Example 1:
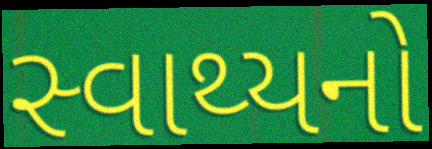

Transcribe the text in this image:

સ્વાથ્યનો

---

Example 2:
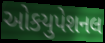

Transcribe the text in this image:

ઓકયુપેશનલ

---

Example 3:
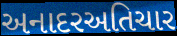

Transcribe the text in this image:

અનાદરઅતિચાર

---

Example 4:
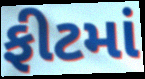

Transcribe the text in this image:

ફીટમાં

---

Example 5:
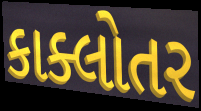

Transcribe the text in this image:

કાક્લોતર